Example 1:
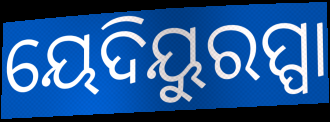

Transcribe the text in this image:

ୟେଦିୟୁରପ୍ପା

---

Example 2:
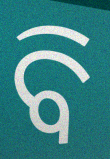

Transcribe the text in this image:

ବି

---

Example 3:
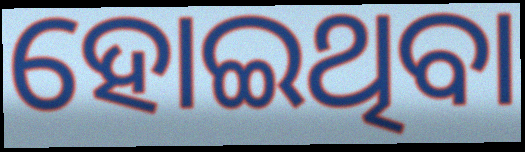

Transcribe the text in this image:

ହୋଇଥିବା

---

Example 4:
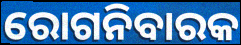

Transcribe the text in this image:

ରୋଗନିବାରକ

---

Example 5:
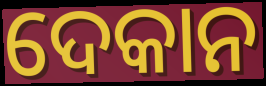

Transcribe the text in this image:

ଦେକାନ